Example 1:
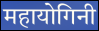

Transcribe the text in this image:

महायोगिनी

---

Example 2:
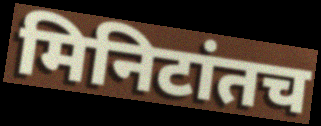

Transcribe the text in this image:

मिनिटांतच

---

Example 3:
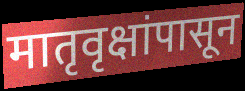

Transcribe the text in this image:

मातृवृक्षांपासून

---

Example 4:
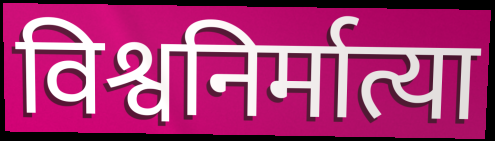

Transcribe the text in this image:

विश्वनिर्मात्या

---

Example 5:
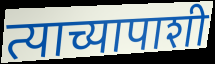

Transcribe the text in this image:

त्याच्यापाशी